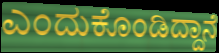
ಎಂದುಕೊಂಡಿದ್ದಾನೆ